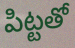
పిట్టతో